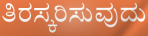
ತಿರಸ್ಕರಿಸುವುದು